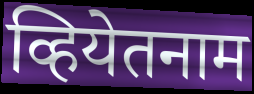
व्हियेतनाम